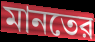
মানতের